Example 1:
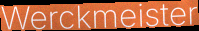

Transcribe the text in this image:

Werckmeister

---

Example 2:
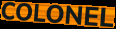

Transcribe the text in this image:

COLONEL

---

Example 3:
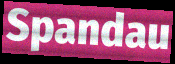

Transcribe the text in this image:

Spandau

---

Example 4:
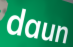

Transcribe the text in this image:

daun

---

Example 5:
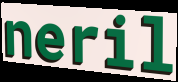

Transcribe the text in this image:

neril